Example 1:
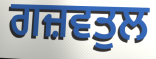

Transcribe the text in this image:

ਗਜ਼ਵਤੁਲ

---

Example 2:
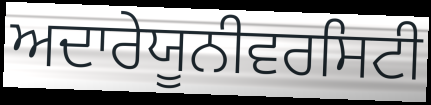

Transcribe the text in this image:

ਅਦਾਰੇਯੂਨੀਵਰਸਿਟੀ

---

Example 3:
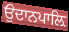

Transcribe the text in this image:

ਉਦਾਨਪਾਲ਼ਿ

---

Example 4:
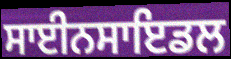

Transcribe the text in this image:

ਸਾਈਨਸਾਇਡਲ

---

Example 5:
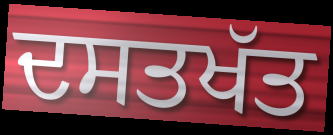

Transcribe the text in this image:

ਦਸਤਖੱਤ